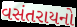
વસંતરાયનો